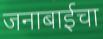
जनाबाईचा